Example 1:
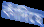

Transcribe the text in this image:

কাঁদিছে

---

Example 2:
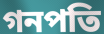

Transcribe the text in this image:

গনপতি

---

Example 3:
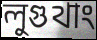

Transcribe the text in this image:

লুগুথাং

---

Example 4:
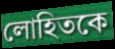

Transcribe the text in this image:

লোহিতকে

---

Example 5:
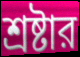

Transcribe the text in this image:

শ্রষ্টার